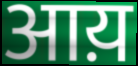
आय़